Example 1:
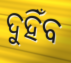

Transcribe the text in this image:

ଦୁହିଁବ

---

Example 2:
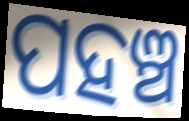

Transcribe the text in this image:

ପହଞ୍ଚ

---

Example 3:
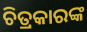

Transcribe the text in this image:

ଚିତ୍ରକାରଙ୍କ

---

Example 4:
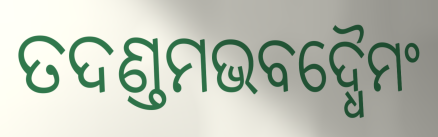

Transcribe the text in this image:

ତଦଣ୍ଡମଭବଦ୍ଧୈମଂ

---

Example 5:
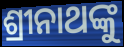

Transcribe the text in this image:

ଶ୍ରୀନାଥଙ୍କୁ